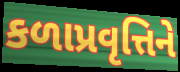
કળાપ્રવૃત્તિને